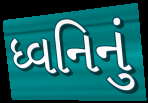
ધ્વનિનું